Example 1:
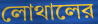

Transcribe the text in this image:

লোথালের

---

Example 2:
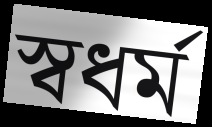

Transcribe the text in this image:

স্বধর্ম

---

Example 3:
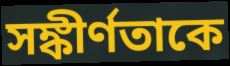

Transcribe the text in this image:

সঙ্কীর্ণতাকে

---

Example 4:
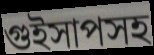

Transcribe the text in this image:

গুইসাপসহ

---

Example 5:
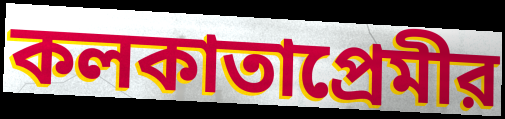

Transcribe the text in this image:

কলকাতাপ্রেমীর